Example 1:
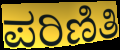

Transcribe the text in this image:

ಪರಿಣಿತಿ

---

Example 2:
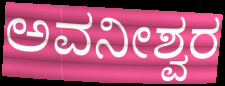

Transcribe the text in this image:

ಅವನೀಶ್ವರ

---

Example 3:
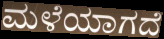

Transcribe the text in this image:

ಮಳೆಯಾಗದೆ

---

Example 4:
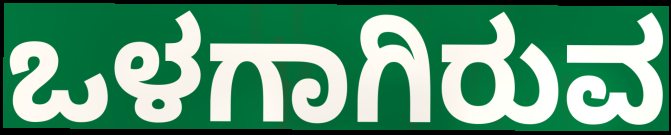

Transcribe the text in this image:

ಒಳಗಾಗಿರುವ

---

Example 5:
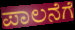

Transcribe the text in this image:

ಪಾಲನೆಗೆ